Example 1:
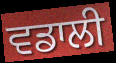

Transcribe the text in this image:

ਵਡਾਲੀ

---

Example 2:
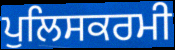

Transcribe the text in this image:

ਪੁਲਿਸਕਰਮੀ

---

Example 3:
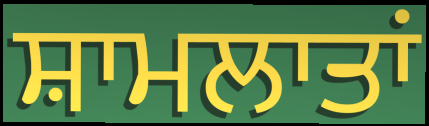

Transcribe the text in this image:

ਸ਼ਾਮਲਾਤਾਂ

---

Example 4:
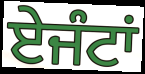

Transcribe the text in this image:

ਏਜੰਟਾਂ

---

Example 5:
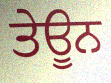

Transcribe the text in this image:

ਤੇਊਨ